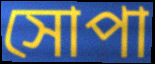
সোপা